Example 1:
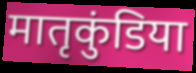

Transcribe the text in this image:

मातृकुंडिया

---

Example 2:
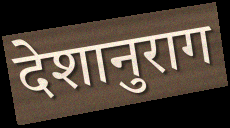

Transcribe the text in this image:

देशानुराग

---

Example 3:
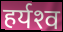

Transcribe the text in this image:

हर्यश्व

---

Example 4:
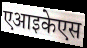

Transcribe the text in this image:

एआइकेएस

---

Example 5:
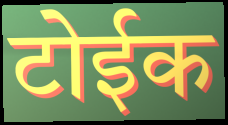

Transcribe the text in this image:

टोईक